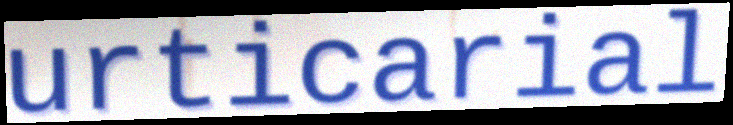
urticarial